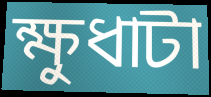
ক্ষুধাটা